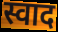
स्वाद